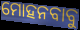
ମୋହନବାବୁ